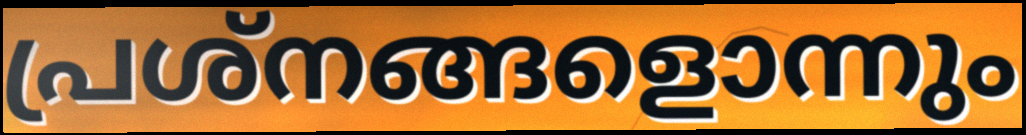
പ്രശ്നങ്ങളൊന്നും